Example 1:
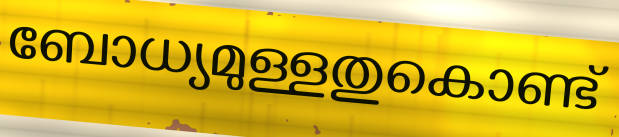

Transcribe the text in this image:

ബോധ്യമുള്ളതുകൊണ്ട്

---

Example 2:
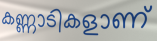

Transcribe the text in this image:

കണ്ണാടികളാണ്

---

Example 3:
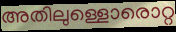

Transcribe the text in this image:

അതിലുള്ളൊരൊറ്റ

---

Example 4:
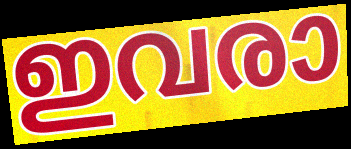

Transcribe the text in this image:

ഇവരാ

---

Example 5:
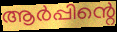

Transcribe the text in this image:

ആർപ്പിന്റെ